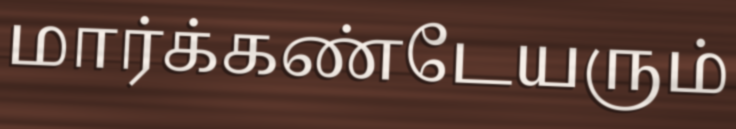
மார்க்கண்டேயரும்